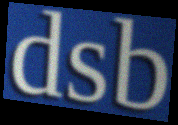
dsb